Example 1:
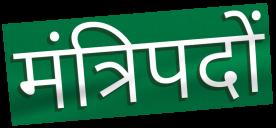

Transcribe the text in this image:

मंत्रिपदों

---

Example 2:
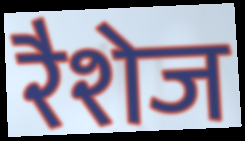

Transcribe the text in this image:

रैशेज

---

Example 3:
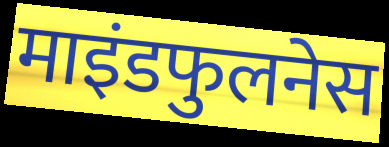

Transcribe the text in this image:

माइंडफुलनेस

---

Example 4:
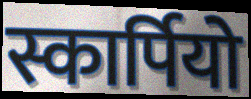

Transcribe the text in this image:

स्कार्पियो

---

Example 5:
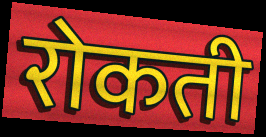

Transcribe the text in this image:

रोकती